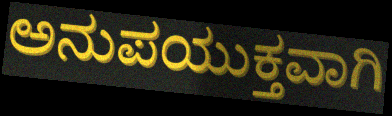
ಅನುಪಯುಕ್ತವಾಗಿ